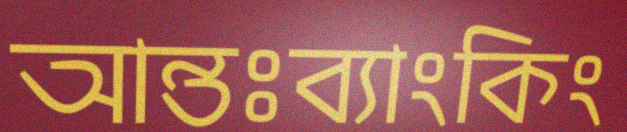
আন্তঃব্যাংকিং